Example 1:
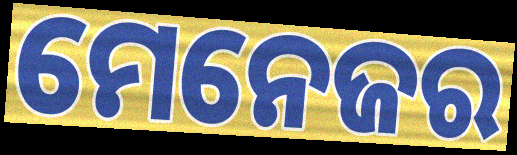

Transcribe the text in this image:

ମେନେଜର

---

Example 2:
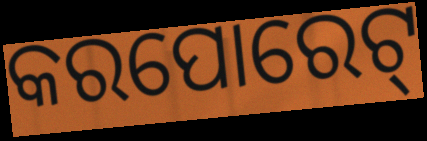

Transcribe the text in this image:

କରପୋରେଟ୍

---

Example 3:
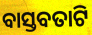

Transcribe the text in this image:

ବାସ୍ତବତାଟି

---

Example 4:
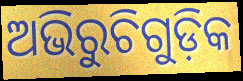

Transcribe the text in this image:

ଅଭିରୁଚିଗୁଡ଼ିକ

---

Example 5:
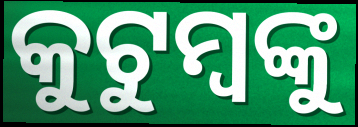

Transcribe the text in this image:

କୁଟୁମ୍ବଙ୍କୁ